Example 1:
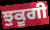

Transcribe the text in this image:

ਝੁਕੂਗੀ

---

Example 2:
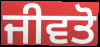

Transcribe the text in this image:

ਜੀਵਤੋ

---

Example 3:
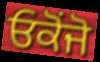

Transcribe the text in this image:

ਓਕੋਂਜੋ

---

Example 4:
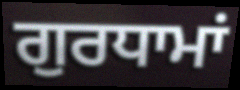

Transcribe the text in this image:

ਗੁਰਧਾਮਾਂ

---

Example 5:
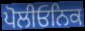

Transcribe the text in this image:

ਪੋਲੀਓਨਿਕ